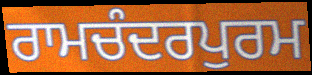
ਰਾਮਚੰਦਰਪੁਰਮ